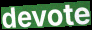
devote